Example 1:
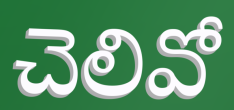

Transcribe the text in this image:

చెలివో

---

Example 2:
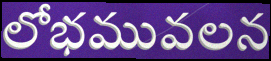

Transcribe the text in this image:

లోభమువలన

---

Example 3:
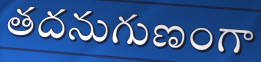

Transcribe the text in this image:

తదనుగుణంగా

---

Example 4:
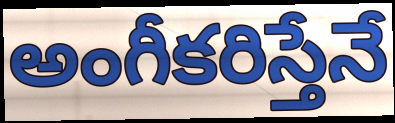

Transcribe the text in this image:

అంగీకరిస్తేనే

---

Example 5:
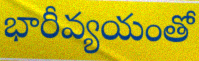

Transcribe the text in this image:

భారీవ్యయంతో